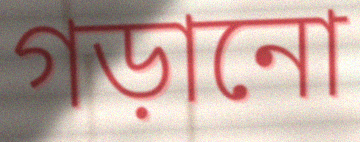
গড়ানো